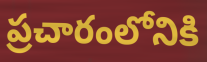
ప్రచారంలోనికి